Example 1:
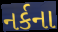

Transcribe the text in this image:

નર્કના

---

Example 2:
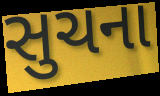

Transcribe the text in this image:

સુચના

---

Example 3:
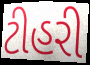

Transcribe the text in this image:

ટીહરી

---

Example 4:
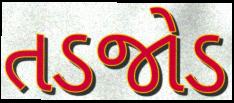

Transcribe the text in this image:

તડજોડ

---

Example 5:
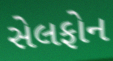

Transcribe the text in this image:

સેલફોન